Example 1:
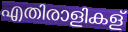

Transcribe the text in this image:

എതിരാളികള്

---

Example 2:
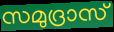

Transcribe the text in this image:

സമുദ്രാസ്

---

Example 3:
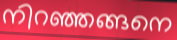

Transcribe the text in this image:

നിറഞ്ഞങ്ങനെ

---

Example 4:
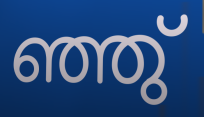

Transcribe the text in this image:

ഞ്ഞു്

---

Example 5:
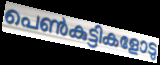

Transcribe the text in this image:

പെൺകുട്ടികളോടു